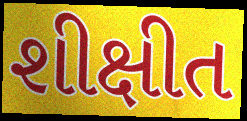
શીક્ષીત